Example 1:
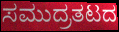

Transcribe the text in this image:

ಸಮುದ್ರತಟದ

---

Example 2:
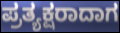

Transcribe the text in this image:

ಪ್ರತ್ಯಕ್ಷರಾದಾಗ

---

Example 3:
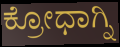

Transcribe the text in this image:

ಕ್ರೋಧಾಗ್ನಿ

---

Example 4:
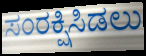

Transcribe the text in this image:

ಸಂರಕ್ಷಿಸಿಡಲು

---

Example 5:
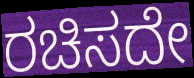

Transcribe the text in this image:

ರಚಿಸದೇ